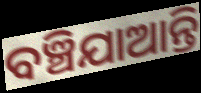
ବଞ୍ଚିଯାଆନ୍ତି